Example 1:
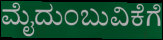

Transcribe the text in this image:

ಮೈದುಂಬುವಿಕೆಗೆ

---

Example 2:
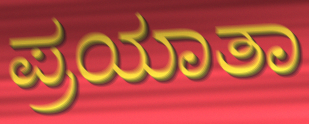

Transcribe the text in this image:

ಪ್ರಯಾತಾ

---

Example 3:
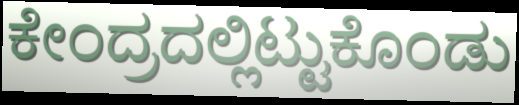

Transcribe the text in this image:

ಕೇಂದ್ರದಲ್ಲಿಟ್ಟುಕೊಂಡು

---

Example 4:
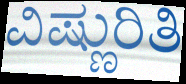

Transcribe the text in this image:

ವಿಷ್ಣುರಿತಿ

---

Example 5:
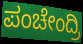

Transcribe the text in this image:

ಪಂಚೇಂದ್ರಿ